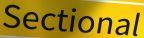
Sectional